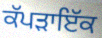
ਕੱਪੜਾਇੱਕ